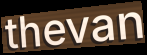
thevan